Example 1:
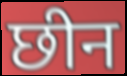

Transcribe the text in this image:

छीन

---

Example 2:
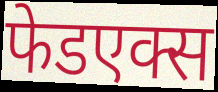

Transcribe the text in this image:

फेडएक्स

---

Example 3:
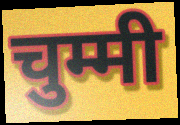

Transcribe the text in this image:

चुम्मी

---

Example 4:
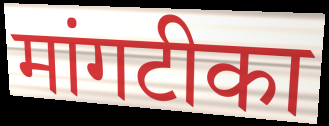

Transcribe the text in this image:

मांगटीका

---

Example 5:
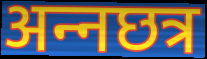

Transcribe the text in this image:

अन्नछत्र